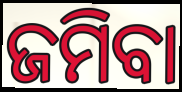
ଜମିବା